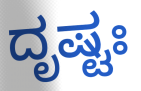
ದೃಷ್ಟಃ